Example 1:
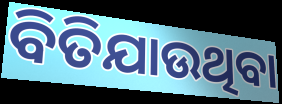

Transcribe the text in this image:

ବିତିଯାଉଥିବା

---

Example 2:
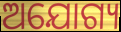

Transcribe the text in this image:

ଅଯୋଗ୍ୟ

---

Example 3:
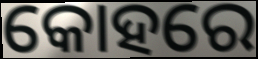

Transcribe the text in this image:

କୋହରେ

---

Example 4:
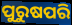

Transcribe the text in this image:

ପୁରୁଷପରି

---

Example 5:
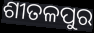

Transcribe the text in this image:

ଶୀତଳପୁର